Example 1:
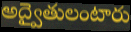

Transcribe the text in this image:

అద్వైతులంటారు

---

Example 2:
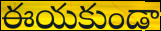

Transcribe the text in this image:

ఈయకుండా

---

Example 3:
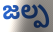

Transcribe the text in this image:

జల్ప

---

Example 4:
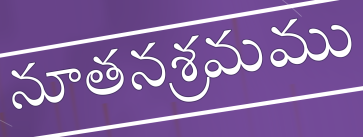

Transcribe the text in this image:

నూతనశ్రమము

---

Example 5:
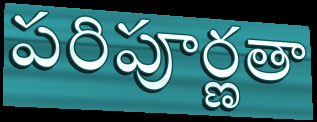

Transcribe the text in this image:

పరిపూర్ణతా